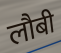
लौबी